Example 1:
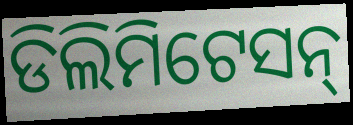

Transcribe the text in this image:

ଡିଲିମିଟେସନ୍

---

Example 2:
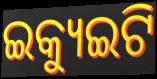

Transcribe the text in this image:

ଇକ୍ୟୁଇଟି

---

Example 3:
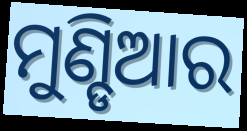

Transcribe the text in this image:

ମୁଣ୍ଡିଆର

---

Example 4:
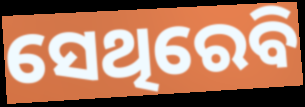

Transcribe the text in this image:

ସେଥିରେବି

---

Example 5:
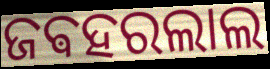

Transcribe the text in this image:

ଜଵହରଲାଲ